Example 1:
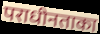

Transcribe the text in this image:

पराधीनताका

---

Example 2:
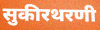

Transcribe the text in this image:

सुकीरथरणी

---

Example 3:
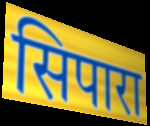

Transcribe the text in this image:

सिपारा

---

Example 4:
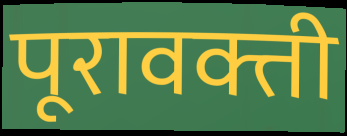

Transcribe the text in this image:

पूरावक्ती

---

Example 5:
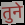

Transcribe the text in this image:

तुने